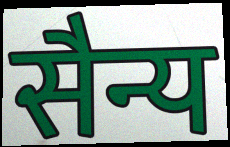
सैन्‍य